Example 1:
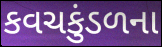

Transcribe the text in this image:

કવચકુંડળના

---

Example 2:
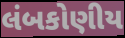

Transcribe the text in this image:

લંબકોણીય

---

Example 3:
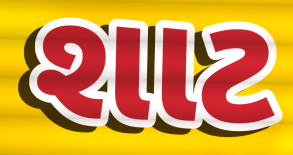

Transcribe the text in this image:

શાટ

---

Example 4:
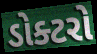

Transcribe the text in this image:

ડોક્ટરો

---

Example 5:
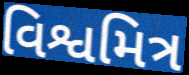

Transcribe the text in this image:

વિશ્વમિત્ર